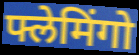
फ्लेमिंगो